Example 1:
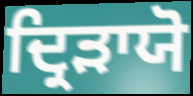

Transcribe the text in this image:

ਦ੍ਰਿੜਾਯੋ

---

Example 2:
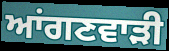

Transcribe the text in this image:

ਆਂਗਣਵਾੜੀ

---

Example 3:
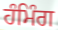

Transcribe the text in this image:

ਹੰਮਿੰਗ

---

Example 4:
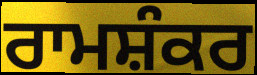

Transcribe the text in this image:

ਰਾਮਸ਼ੰਕਰ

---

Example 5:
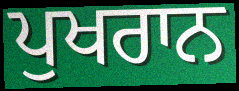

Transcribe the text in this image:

ਪੁਖਰਾਨ